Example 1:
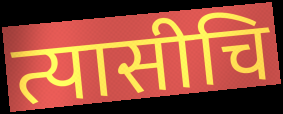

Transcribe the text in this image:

त्यासीचि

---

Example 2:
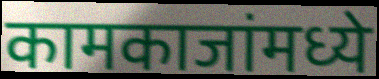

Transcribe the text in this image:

कामकाजांमध्ये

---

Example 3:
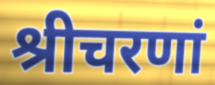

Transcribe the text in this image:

श्रीचरणां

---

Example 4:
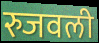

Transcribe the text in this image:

रुजवली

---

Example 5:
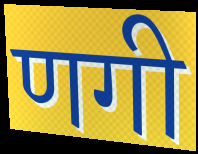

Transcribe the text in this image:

णगी